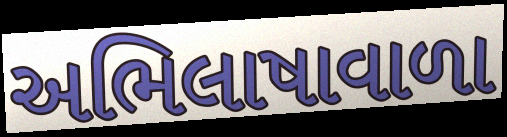
અભિલાષાવાળા